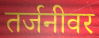
तर्जनीवर